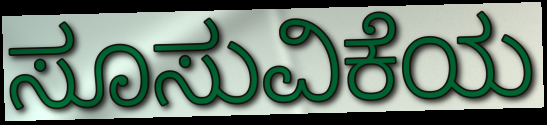
ಸೂಸುವಿಕೆಯ